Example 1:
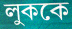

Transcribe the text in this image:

লুককে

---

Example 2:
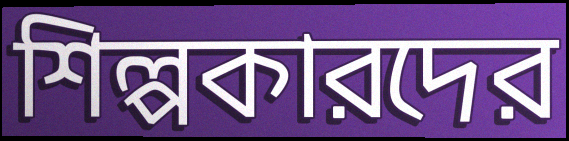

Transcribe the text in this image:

শিল্পকারদের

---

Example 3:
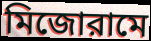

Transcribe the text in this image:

মিজোরামে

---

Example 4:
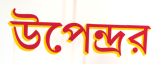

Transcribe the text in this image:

উপেন্দ্রর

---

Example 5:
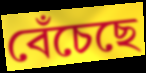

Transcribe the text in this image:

বেঁচেছে